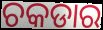
ଚକଡାର